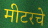
मीटरचे